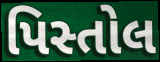
પિસ્તોલ